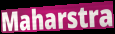
Maharstra